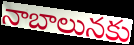
నాబాలునకు